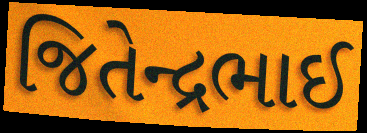
જિતેન્દ્રભાઈ